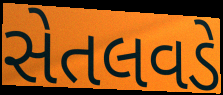
સેતલવડે